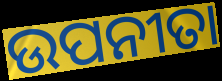
ଉପନୀତା